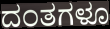
ದಂತಗಳೂ